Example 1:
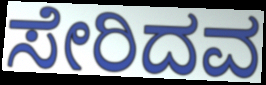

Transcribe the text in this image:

ಸೇರಿದವ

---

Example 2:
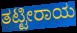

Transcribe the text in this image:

ತಟ್ಟೀರಾಯ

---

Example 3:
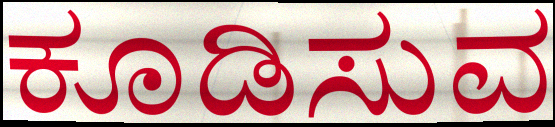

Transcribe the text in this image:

ಕೂಡಿಸುವ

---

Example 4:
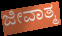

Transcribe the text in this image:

ಜೀವಾತ್ಮ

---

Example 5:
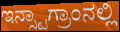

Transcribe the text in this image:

ಇನ್ಸ್ಟಾಗ್ರಾಂನಲ್ಲಿ